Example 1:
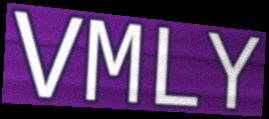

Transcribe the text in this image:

VMLY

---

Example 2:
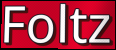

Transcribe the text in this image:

Foltz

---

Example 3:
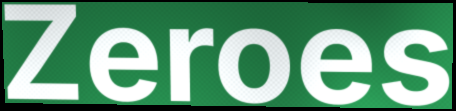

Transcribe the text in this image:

Zeroes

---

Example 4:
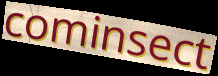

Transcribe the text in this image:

cominsect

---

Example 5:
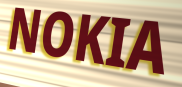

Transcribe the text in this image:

NOKIA